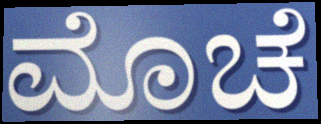
ಮೊಚೆ